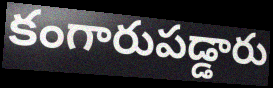
కంగారుపడ్డారు